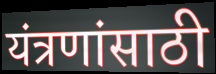
यंत्रणांसाठी